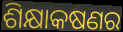
ଶିକ୍ଷାକଷଣର